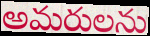
అమరులను